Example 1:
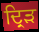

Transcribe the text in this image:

ਦ੍ਰਿਡ਼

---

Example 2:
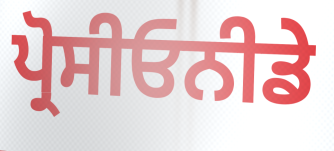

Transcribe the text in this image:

ਪ੍ਰੋਸੀਓਨੀਡੇ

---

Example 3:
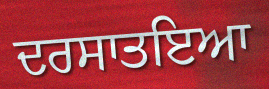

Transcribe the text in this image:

ਦਰਸਾਤਇਆ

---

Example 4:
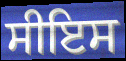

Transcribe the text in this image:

ਸੀਇਸ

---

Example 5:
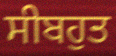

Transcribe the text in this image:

ਸੀਬਹੁਤ